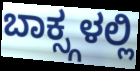
ಬಾಕ್ಸ್ಗಳಲ್ಲಿ